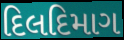
દિલદિમાગ